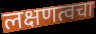
लक्षणत्वचा